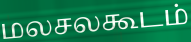
மலசலகூடம்